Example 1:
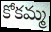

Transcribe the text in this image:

కోకమ్మ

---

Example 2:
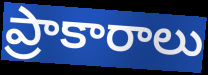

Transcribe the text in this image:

ప్రాకారాలు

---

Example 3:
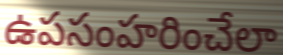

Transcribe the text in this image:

ఉపసంహరించేలా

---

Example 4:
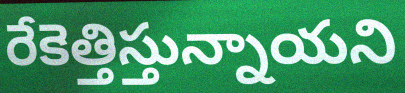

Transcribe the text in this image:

రేకెత్తిస్తున్నాయని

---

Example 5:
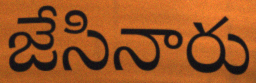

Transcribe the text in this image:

జేసినారు